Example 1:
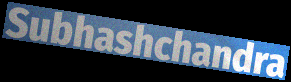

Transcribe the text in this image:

Subhashchandra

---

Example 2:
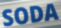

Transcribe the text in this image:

SODA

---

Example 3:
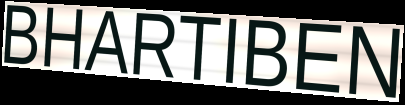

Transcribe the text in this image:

BHARTIBEN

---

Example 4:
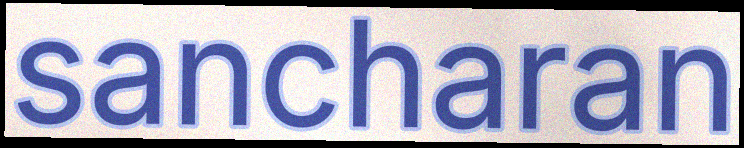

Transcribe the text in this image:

sancharan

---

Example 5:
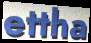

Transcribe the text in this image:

ettha